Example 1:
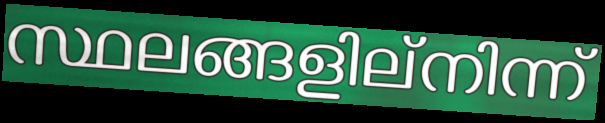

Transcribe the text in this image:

സ്ഥലങ്ങളില്നിന്ന്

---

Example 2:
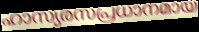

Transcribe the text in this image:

ഹാസ്യരസപ്രധാനമായ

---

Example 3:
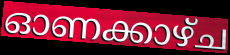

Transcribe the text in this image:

ഓണക്കാഴ്ച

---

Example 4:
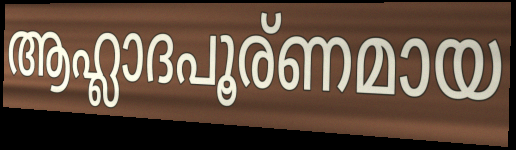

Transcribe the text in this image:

ആഹ്ലാദപൂര്ണമായ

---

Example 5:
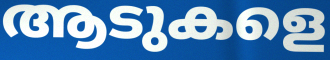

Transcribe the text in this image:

ആടുകളെ